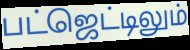
பட்ஜெட்டிலும்